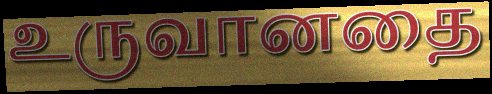
உருவானதை